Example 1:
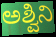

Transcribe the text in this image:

ಅಶ್ವಿನಿ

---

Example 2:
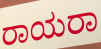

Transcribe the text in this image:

ರಾಯರಾ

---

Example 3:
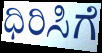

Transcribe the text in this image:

ಧಿರಿಸಿಗೆ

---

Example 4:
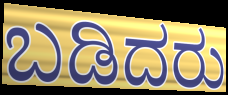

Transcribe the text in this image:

ಬಡಿದರು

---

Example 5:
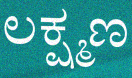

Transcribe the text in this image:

ಲಕ್ಷ್ಮಣ